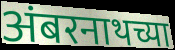
अंबरनाथच्या